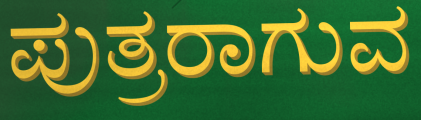
ಪುತ್ರರಾಗುವ